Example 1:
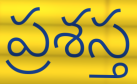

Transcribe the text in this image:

ప్రశస్త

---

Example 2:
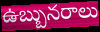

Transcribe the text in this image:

ఉబ్బునరాలు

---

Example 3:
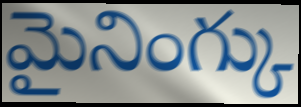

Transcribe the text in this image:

మైనింగ్కు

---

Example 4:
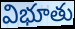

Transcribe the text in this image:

విభూతు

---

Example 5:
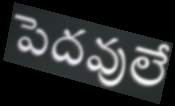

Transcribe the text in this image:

పెదవులే